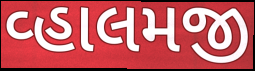
વ્હાલમજી